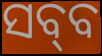
ସବ୍‌ବ